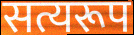
सत्यरूप